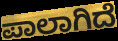
ಪಾಲಾಗಿದೆ